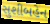
સુશીબહેન